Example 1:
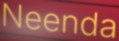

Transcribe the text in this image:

Neenda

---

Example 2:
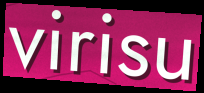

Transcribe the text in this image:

virisu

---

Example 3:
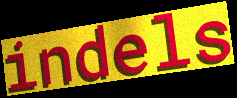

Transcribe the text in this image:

indels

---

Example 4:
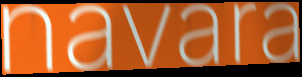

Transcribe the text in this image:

navara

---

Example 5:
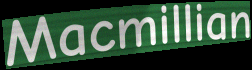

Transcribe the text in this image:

Macmillian